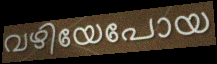
വഴിയേപോയ